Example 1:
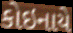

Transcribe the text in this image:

કોઇનાયે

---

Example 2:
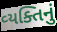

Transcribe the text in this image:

વ્‍યક્તિનું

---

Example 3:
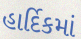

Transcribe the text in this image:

હાર્દિકમાં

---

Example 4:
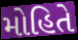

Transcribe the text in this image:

મોહિતે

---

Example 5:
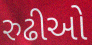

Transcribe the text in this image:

રુઢીઓ